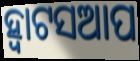
ହ୍ୱାଟସଆପ